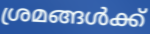
ശ്രമങ്ങൾക്ക്